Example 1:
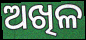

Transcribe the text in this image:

ଅଖିଳ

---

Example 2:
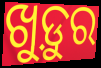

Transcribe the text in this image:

ଖୁଡ଼ୁର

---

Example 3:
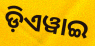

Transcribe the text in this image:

ଡ଼ିଏୱାଇ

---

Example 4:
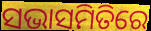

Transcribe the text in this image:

ସଭାସମିତିରେ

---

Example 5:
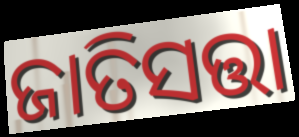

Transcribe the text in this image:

ଜାତିସତ୍ତା